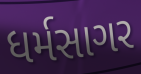
ધર્મસાગર